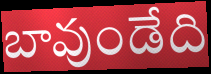
బావుండేది